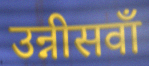
उन्नीसवाँ